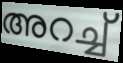
അറച്ച്